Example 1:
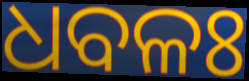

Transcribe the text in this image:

ଧବଳଃ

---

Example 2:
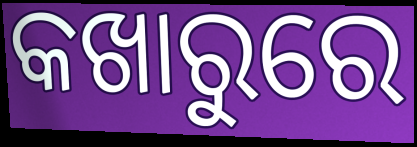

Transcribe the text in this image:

କଖାରୁରେ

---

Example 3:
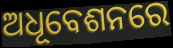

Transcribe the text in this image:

ଅଧୂବେଶନରେ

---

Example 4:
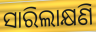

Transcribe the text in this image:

ସାରିଲାକ୍ଷଣି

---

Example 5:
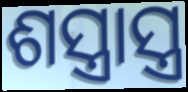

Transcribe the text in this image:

ଶସ୍ତ୍ରାସ୍ତ୍ର